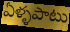
ఏళ్ళపాటు